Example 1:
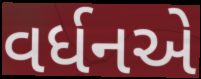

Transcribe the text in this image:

વર્ધનએ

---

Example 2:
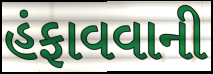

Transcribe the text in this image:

હંફાવવાની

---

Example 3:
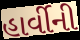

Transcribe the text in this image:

હાર્વીની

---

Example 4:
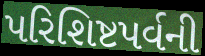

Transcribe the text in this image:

પરિશિષ્ટપર્વની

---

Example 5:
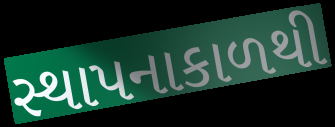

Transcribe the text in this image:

સ્થાપનાકાળથી